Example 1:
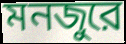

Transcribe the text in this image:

মনজুরে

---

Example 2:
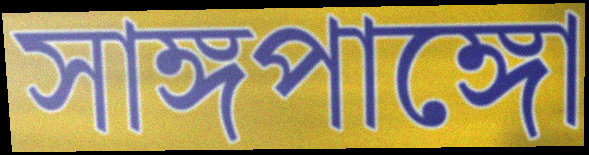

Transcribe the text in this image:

সাঙ্গপাঙ্গো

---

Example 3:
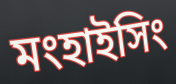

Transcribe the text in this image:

মংহাইসিং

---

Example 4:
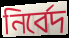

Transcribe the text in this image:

নির্বেদ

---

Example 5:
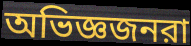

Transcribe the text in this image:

অভিজ্ঞজনরা